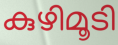
കുഴിമൂടി